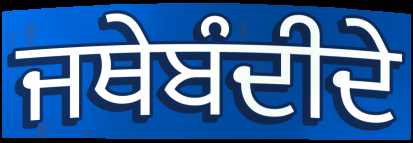
ਜਥੇਬੰਦੀਦੇ